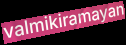
valmikiramayan